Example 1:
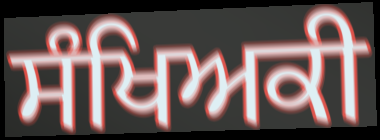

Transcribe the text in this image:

ਸੰਖਿਅਕੀ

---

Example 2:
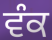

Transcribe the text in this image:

ਵੰਕ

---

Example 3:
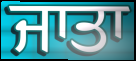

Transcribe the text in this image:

ਜਾਤਾ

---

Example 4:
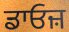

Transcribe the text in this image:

ਡਾਓਜ਼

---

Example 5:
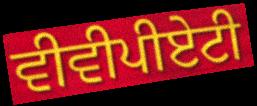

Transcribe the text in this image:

ਵੀਵੀਪੀਏਟੀ